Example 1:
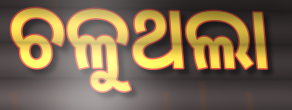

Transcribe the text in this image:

ଚଳୁଥଲା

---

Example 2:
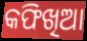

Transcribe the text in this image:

କଫିଖିଆ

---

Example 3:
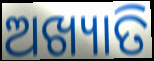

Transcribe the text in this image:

ଅଖ୍ୟାତି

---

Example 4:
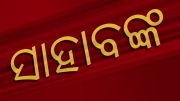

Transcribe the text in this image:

ସାହାବଙ୍କ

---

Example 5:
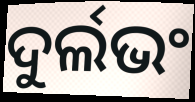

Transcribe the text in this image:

ଦୁର୍ଲଭଂ